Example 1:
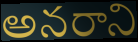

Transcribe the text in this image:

అనరాని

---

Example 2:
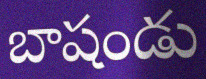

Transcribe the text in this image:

బాషండు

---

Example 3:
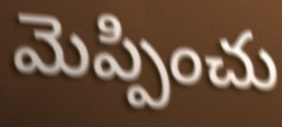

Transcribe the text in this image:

మెప్పించు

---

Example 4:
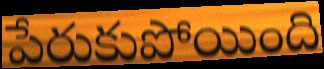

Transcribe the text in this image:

పేరుకుపోయింది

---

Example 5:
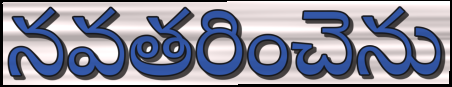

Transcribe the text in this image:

నవతరించెను